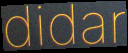
didar